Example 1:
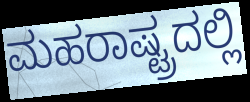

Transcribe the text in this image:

ಮಹರಾಷ್ಟ್ರದಲ್ಲಿ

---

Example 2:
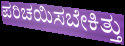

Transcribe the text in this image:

ಪರಿಚಯಿಸಬೇಕಿತ್ತು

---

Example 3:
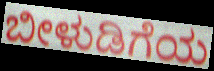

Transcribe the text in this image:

ಬೀಳುಡಿಗೆಯ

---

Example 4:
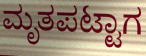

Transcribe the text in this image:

ಮೃತಪಟ್ಟಾಗ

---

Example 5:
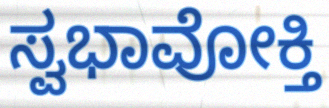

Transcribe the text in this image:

ಸ್ವಭಾವೋಕ್ತಿ